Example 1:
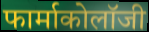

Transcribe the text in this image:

फार्माकोलॉजी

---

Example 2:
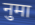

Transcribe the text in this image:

नुमा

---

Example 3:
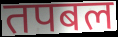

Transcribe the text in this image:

तपबल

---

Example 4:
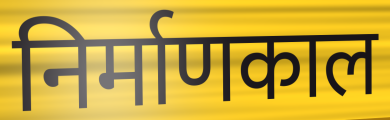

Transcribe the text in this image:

निर्माणकाल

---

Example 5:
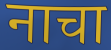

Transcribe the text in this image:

नाचा